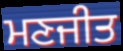
ਮਣਜੀਤ